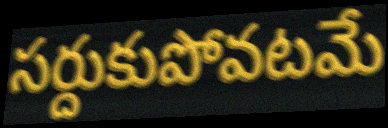
సర్దుకుపోవటమే